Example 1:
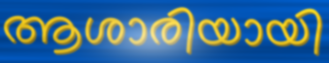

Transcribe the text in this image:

ആശാരിയായി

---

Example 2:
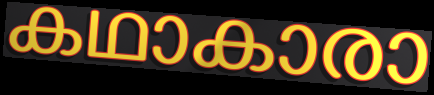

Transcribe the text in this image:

കഥാകാരാ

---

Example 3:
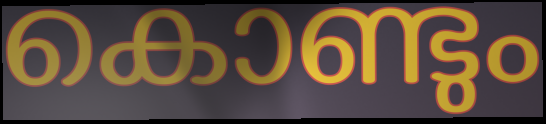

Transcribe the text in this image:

കൊണ്ടും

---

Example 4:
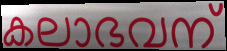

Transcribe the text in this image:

കലാഭവന്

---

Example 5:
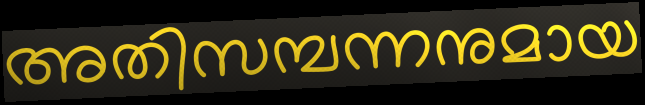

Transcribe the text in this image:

അതിസമ്പന്നനുമായ